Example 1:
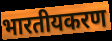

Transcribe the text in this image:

भारतीयकरण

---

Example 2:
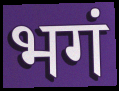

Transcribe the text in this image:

भगं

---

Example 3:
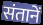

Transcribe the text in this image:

संतानें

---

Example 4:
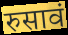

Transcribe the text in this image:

रुसावं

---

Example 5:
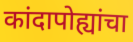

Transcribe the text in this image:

कांदापोह्यांचा